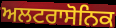
ਅਲਟਰਾਸੋਨਿਕ